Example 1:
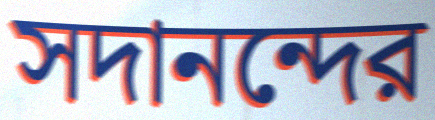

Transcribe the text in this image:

সদানন্দের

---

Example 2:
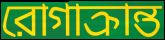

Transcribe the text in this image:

রোগাক্রান্ত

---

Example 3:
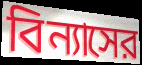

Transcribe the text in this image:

বিন্যাসের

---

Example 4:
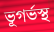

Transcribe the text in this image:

ভূগর্ভস্থ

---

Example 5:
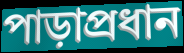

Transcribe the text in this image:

পাড়াপ্রধান